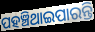
ପହଞ୍ଚିଥାଇପାରନ୍ତି